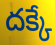
దక్కే